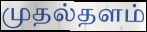
முதல்தளம்